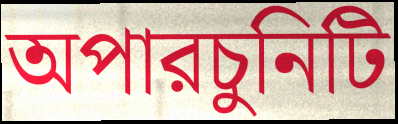
অপারচুনিটি